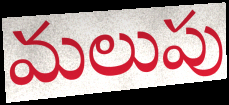
మలుపు